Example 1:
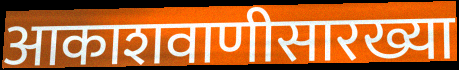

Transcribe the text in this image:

आकाशवाणीसारख्या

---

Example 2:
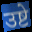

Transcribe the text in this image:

उष्टे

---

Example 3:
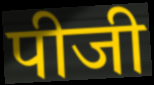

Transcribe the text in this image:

पीजी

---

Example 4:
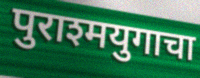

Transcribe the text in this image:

पुराश्मयुगाचा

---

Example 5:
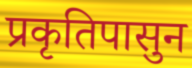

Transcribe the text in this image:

प्रकृतिपासुन